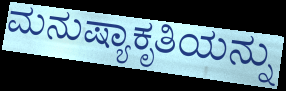
ಮನುಷ್ಯಾಕೃತಿಯನ್ನು